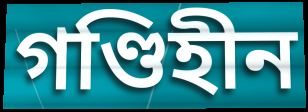
গণ্ডিহীন